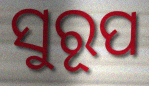
ସୁରୂପ